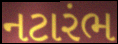
નટારંભ